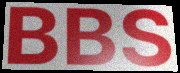
BBS